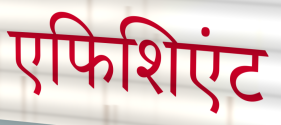
एफिशिएंट